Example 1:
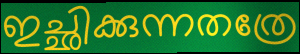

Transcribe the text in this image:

ഇച്ഛിക്കുന്നതത്രേ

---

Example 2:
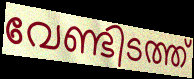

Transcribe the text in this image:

വേണ്ടിടത്ത്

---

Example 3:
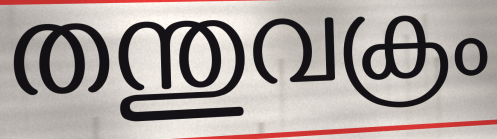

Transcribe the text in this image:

തന്തുവക്രം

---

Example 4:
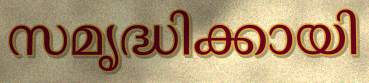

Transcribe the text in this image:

സമൃദ്ധിക്കായി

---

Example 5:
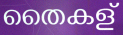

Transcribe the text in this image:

തൈകള്